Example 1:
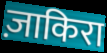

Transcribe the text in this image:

ज़ाकिरा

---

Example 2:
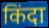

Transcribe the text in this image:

किंदा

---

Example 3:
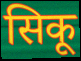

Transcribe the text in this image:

सिकू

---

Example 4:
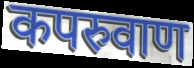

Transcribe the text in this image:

कपरुवाण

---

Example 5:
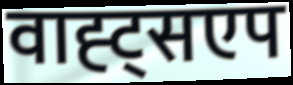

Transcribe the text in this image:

वाह्ट्सएप